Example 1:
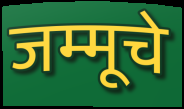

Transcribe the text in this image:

जम्मूचे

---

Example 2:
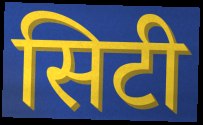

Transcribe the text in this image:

सिटी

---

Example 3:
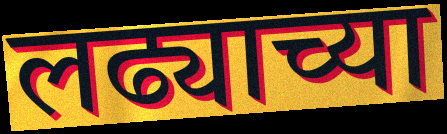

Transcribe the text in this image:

लढ्याच्या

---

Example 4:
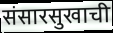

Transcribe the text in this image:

संसारसुखाची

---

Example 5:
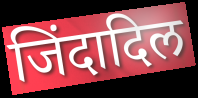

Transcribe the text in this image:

जिंदादिल